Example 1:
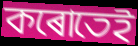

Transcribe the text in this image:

কৰোতেই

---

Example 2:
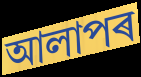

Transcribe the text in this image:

আলাপৰ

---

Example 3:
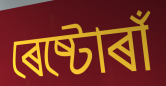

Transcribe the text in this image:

ৰেষ্টোৰাঁ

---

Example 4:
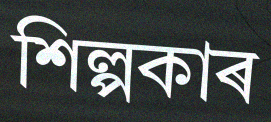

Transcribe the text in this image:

শিল্পকাৰ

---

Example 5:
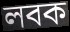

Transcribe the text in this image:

লবক